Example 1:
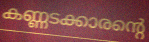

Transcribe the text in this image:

കണ്ണടക്കാരന്റെ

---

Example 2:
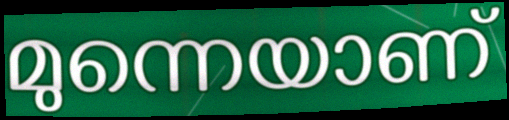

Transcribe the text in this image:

മുന്നെയാണ്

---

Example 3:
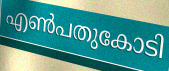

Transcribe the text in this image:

എൺപതുകോടി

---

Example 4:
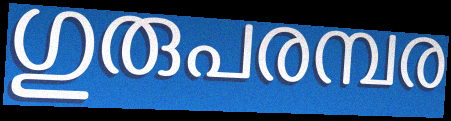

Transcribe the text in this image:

ഗുരുപരമ്പര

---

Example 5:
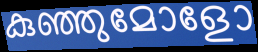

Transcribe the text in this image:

കുഞ്ഞുമോളോ